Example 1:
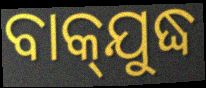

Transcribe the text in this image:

ବାକ୍‌ଯୁଦ୍ଧ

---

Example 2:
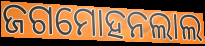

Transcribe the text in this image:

ଜଗମୋହନଲାଲ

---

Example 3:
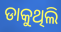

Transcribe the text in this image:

ଡାକୁଥିଲି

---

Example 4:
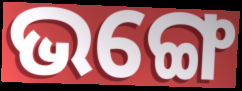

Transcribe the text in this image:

ଭଙ୍ଗେ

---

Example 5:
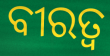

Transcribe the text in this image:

ବୀରତ୍ୱ